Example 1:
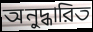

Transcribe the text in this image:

অনুদ্ধারিত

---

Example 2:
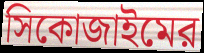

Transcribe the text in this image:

সিকোজাইমের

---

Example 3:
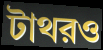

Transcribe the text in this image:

টাথরও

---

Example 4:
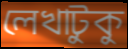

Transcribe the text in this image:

লেখাটুকু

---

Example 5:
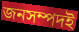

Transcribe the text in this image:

জনসম্পদই